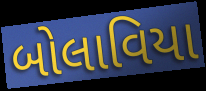
બોલાવિયા